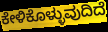
ಕೇಳಿಕೊಳ್ಳುವುದಿದೆ